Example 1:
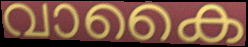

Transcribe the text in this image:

വാകൈ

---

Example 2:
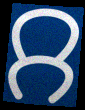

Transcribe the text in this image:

റ്റ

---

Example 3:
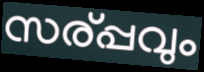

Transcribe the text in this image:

സര്പ്പവും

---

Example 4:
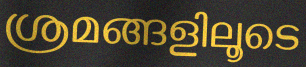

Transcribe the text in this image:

ശ്രമങ്ങളിലൂടെ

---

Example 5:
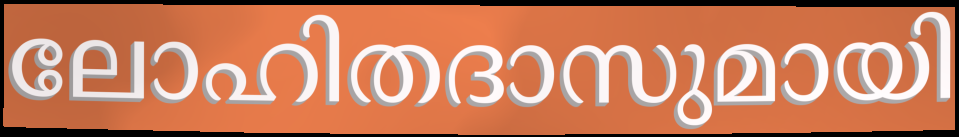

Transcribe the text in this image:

ലോഹിതദാസുമായി